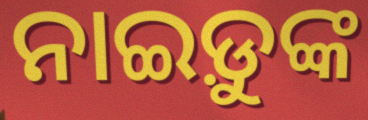
ନାଇଡ଼ୁଙ୍କ